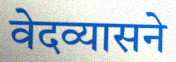
वेदव्यासने